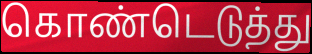
கொண்டெடுத்து